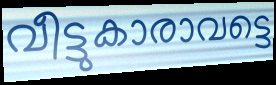
വീട്ടുകാരാവട്ടെ